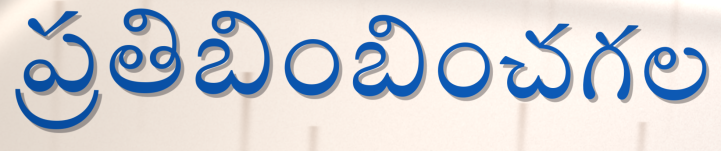
ప్రతిబింబించగల